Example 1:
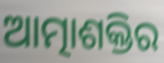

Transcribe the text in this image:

ଆତ୍ମାଶକ୍ତିର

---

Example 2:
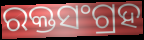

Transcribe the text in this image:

ରକ୍ତସଂଗ୍ରହ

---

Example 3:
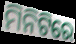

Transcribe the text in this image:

ମିନିଟିରେ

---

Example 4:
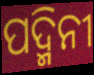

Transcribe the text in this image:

ପଦ୍ମିନୀ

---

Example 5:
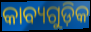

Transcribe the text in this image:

କାବ୍ୟଗୁଡ଼ିକ